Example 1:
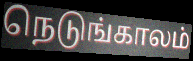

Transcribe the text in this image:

நெடுங்காலம்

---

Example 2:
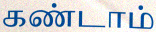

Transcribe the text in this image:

கண்டாம்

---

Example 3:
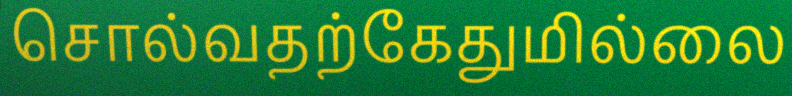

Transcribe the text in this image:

சொல்வதற்கேதுமில்லை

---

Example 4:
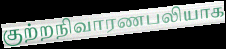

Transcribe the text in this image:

குற்றநிவாரணபலியாக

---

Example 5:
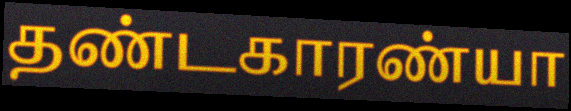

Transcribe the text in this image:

தண்டகாரண்யா